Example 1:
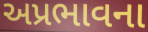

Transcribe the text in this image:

અપ્રભાવના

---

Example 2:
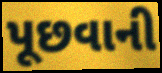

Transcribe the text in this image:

પૂછવાની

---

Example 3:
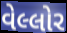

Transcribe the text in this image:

વેલ્લોર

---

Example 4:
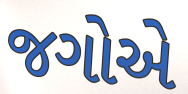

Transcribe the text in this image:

જગોએ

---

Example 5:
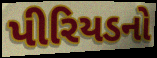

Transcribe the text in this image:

પીરિયડનો